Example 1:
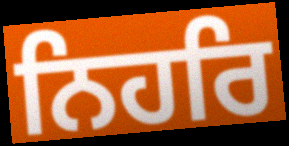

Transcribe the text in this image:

ਨਿਹਰਿ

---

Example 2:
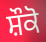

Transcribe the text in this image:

ਸ਼ੌਕੋ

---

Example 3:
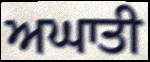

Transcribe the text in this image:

ਅਘਾਤੀ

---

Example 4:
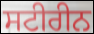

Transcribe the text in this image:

ਸਟੀਰੀਨ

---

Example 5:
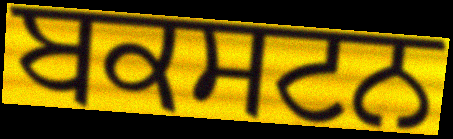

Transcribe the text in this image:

ਬਕਸਟਨ